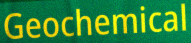
Geochemical